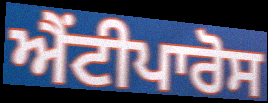
ਐਂਟੀਪਾਰੋਸ